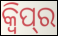
କ୍ଵିପ୍‌ର